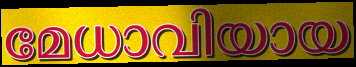
മേധാവിയായ